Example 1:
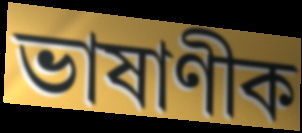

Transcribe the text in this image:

ভাষাণীক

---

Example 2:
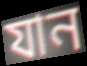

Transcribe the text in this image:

যান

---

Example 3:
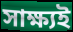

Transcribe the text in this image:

সাক্ষ্যই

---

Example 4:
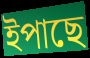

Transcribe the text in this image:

ইপাছে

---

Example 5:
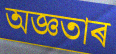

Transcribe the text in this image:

অজ্ঞতাৰ